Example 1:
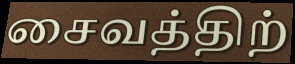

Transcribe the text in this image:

சைவத்திற்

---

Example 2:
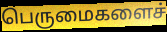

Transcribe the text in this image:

பெருமைகளைச்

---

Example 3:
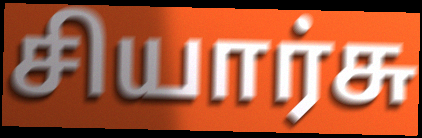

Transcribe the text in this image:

சியார்சு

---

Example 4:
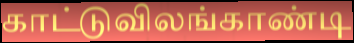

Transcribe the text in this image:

காட்டுவிலங்காண்டி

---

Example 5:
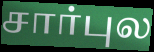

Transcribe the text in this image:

சார்புல